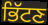
ਭਿੱਟਣ